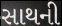
સાથની